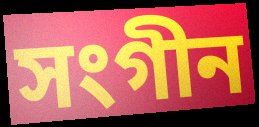
সংগীন